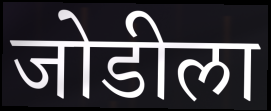
जोडीला